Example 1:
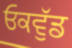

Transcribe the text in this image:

ਓਕਵੁੱਡ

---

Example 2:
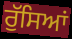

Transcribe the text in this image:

ਰੁੱਸਿਆਂ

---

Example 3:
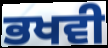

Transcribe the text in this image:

ਭਖਵੀ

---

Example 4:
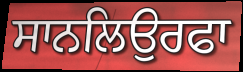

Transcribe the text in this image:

ਸਾਨਲਿਉਰਫਾ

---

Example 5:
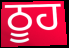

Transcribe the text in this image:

ਠੂਹ